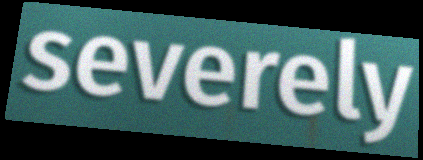
severely